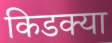
किडक्या